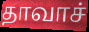
தாவாச்